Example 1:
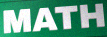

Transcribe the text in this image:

MATH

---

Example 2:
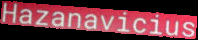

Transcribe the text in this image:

Hazanavicius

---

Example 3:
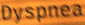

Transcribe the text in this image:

Dyspnea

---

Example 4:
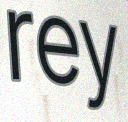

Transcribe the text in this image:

rey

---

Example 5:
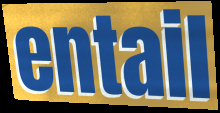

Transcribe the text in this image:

entail